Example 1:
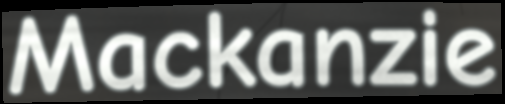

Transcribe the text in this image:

Mackanzie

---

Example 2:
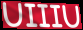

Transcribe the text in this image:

UIIIU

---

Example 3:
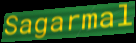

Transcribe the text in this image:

Sagarmal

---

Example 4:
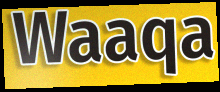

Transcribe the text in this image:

Waaqa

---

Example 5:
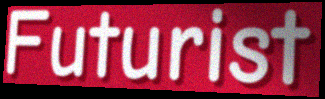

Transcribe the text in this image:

Futurist